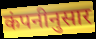
कंपनीनुसार